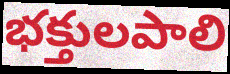
భక్తులపాలి